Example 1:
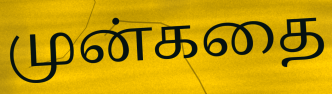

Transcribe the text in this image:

முன்கதை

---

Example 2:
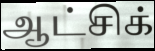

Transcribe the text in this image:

ஆட்சிக்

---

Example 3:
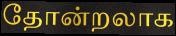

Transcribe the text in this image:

தோன்றலாக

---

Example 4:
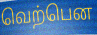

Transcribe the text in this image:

வெற்பென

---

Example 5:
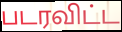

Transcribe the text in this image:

படரவிட்ட